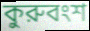
কুরুবংশ